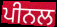
ਪੀਨਲ